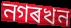
নগৰখন